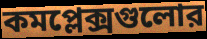
কমপ্লেক্সগুলোর